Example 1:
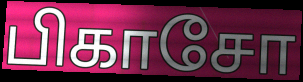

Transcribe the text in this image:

பிகாசோ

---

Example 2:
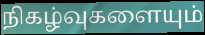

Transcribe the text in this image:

நிகழ்வுகளையும்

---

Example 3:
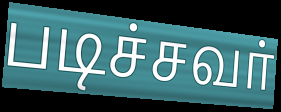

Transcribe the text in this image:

படிச்சவர்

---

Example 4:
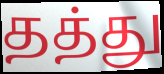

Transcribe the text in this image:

தத்து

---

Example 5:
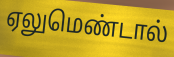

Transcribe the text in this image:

ஏலுமெண்டால்